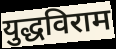
युद्धविराम